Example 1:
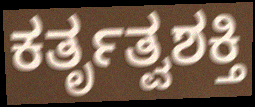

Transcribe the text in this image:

ಕರ್ತೃತ್ವಶಕ್ತಿ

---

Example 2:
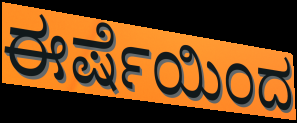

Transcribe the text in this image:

ಈರ್ಷೆಯಿಂದ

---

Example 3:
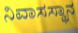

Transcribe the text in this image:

ನಿವಾಸಸ್ಥಾನ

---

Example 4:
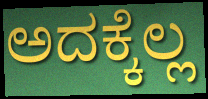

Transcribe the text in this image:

ಅದಕ್ಕೆಲ್ಲ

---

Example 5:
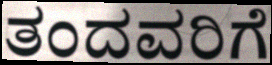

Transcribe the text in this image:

ತಂದವರಿಗೆ